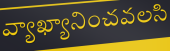
వ్యాఖ్యానించవలసి